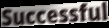
Successful